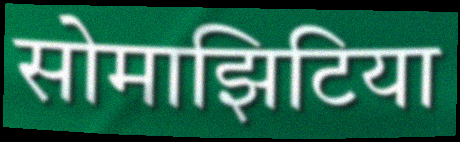
सोमाझिटिया